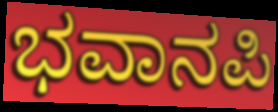
ಭವಾನಪಿ